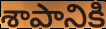
శాపానికి